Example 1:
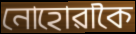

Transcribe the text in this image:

নোহোৱাকৈ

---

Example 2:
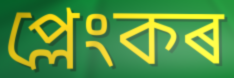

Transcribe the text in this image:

প্লেংকৰ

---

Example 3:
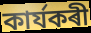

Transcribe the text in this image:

কাৰ্যকৰী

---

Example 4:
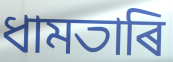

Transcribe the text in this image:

ধামতাৰি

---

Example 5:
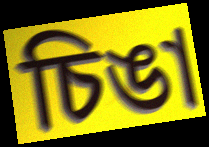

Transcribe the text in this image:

চিঙা